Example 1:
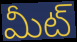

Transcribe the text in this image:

మీట్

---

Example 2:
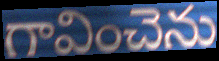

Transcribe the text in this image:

గావించెను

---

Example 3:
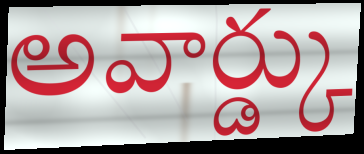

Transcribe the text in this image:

అవార్డ్కు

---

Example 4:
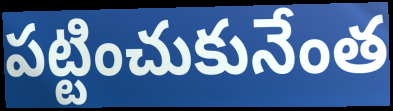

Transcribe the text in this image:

పట్టించుకునేంత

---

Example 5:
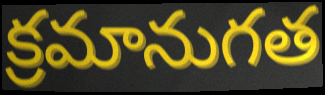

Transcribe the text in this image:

క్రమానుగత